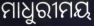
ମାଧୁରୀମୟ